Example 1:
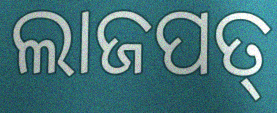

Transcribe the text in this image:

ଲାଜପତ୍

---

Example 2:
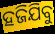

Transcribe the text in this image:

ହଜିଯିବୁ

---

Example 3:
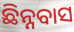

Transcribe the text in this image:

ଛିନ୍ନବାସ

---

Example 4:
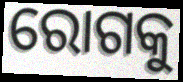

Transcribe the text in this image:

ରୋଗକୁ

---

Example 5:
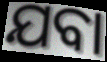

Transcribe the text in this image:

ଯବା